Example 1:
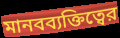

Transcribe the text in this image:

মানবব্যক্তিত্বের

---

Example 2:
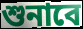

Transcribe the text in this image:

শুনাবে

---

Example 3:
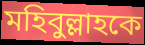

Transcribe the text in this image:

মহিবুল্লাহকে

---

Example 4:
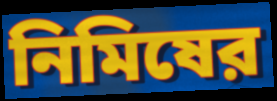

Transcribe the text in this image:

নিমিষের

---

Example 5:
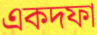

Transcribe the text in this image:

একদফা